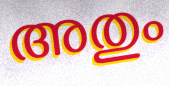
അതും